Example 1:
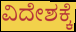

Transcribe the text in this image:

ವಿದೇಶಕ್ಕೆ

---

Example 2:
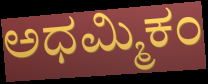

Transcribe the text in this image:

ಅಧಮ್ಮಿಕಂ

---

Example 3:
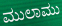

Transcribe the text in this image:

ಮುಲಾಮು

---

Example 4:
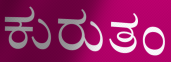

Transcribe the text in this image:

ಕುರುತಂ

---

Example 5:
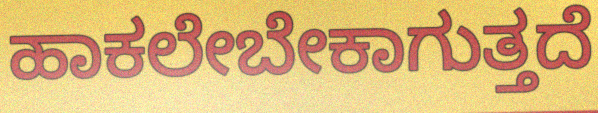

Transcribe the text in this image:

ಹಾಕಲೇಬೇಕಾಗುತ್ತದೆ